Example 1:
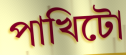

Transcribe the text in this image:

পাখিটো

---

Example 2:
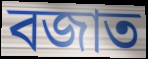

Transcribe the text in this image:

বজাত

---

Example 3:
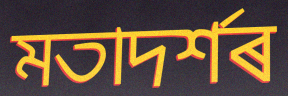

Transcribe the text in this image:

মতাদৰ্শৰ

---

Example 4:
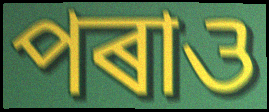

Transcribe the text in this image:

পৰাও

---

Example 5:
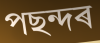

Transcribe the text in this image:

পছন্দৰ